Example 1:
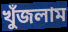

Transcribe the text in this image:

খুঁজলাম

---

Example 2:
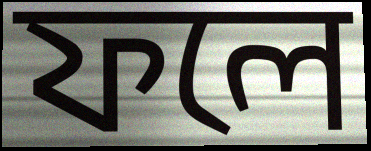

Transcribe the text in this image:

ফলে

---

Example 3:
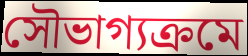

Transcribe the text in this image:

সৌভাগ্যক্রমে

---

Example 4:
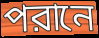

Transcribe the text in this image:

পরানে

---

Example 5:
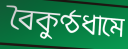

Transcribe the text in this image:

বৈকুণ্ঠধামে